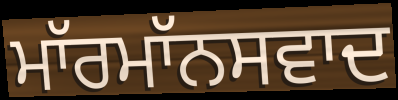
ਮਾੱਰਮਾੱਨਸਵਾਦ